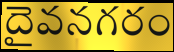
దైవనగరం